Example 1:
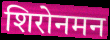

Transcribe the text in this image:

शिरोनमन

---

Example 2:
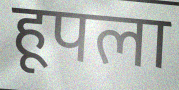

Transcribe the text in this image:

हूपला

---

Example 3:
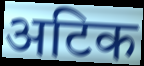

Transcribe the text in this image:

अटिक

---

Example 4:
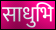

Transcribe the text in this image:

साधुभि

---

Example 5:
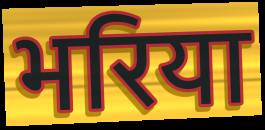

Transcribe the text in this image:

भरिया